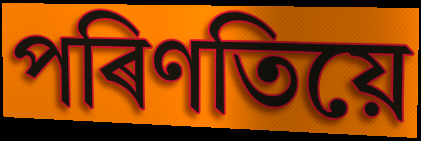
পৰিণতিয়ে